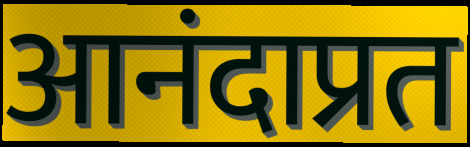
आनंदाप्रत